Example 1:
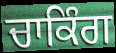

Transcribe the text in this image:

ਚਾਕਿੰਗ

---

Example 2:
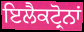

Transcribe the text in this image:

ਇਲੈਕਟ੍ਰੋਨਾਂ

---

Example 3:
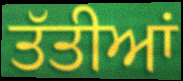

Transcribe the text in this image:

ਤੱਤੀਆਂ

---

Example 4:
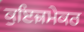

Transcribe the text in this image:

ਕੁਇਜ਼ਮੇਕਰ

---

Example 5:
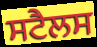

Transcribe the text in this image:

ਸਟੈਲਸ